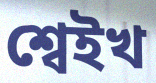
শ্বেইখ